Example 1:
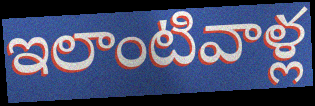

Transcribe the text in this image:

ఇలాంటివాళ్ల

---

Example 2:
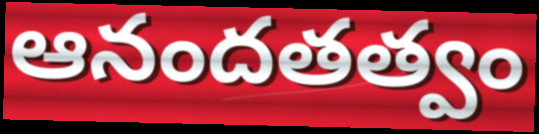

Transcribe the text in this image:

ఆనందతత్వం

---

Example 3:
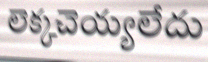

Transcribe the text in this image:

లెక్కచెయ్యలేదు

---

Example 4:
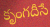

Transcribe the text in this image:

కృంగదీసే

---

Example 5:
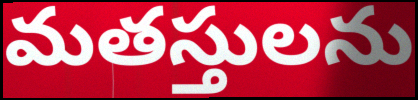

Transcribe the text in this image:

మతస్తులను